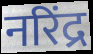
नरिंद्र